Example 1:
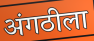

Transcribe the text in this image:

अंगठीला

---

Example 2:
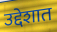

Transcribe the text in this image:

उद्देशात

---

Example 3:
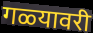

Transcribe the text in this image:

गळ्यावरी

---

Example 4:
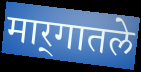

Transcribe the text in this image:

मार्गातले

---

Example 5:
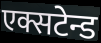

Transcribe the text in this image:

एक्सटेन्ड